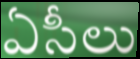
ఏసీలు